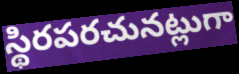
స్థిరపరచునట్లుగా